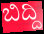
ಬಿದ್ದಿ